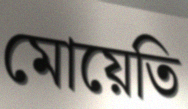
মোয়েতি